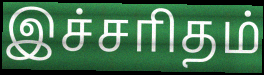
இச்சரிதம்